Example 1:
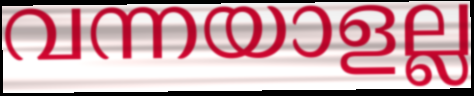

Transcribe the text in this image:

വന്നയാളല്ല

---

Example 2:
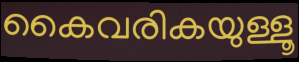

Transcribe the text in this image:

കൈവരികയുള്ളൂ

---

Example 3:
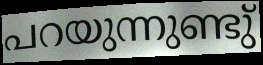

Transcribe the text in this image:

പറയുന്നുണ്ടു്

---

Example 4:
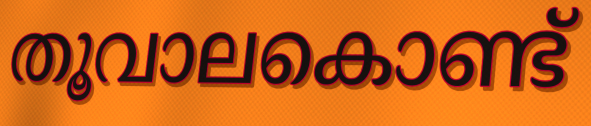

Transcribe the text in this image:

തൂവാലകൊണ്ട്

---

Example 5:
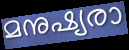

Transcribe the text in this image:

മനുഷ്യരാ